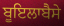
ਬੂਇਲਾਬੈਸੇ